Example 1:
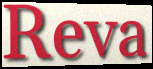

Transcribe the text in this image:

Reva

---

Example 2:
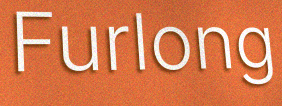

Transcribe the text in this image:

Furlong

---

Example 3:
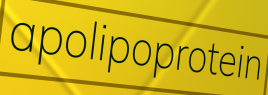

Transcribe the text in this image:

apolipoprotein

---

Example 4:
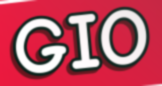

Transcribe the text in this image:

GIO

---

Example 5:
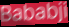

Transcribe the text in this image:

Bababji